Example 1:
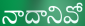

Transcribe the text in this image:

నాదానివో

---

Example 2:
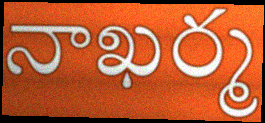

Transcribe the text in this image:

నాఖర్మ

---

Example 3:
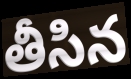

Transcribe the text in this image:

తీసిన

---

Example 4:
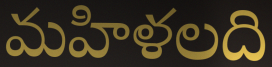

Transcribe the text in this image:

మహిళలది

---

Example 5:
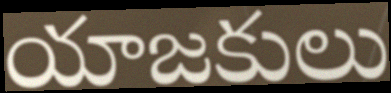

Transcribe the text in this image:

యాజకులు